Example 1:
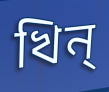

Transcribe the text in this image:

খিন্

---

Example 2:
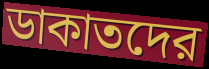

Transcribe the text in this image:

ডাকাতদের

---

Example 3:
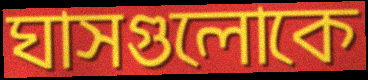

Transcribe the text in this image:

ঘাসগুলোকে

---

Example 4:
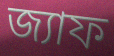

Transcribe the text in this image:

জ্যাফ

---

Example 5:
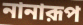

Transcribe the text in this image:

নানারূপ